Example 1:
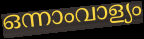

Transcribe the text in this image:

ഒന്നാംവാള്യം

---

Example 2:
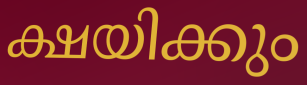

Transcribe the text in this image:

ക്ഷയിക്കും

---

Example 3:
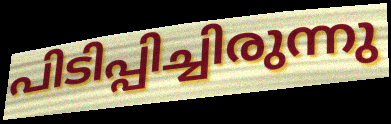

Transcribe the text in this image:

പിടിപ്പിച്ചിരുന്നു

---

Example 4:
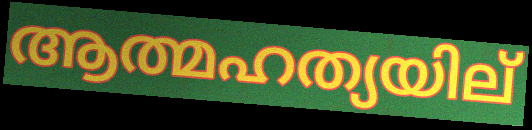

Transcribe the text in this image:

ആത്മഹത്യയില്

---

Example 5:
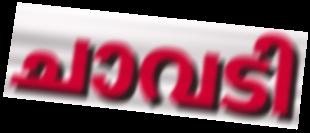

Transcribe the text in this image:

ചാവടി